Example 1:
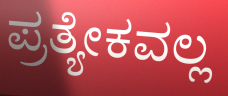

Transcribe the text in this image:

ಪ್ರತ್ಯೇಕವಲ್ಲ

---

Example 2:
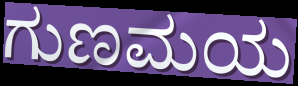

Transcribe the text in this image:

ಗುಣಮಯ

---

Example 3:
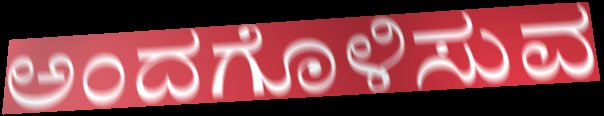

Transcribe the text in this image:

ಅಂದಗೊಳಿಸುವ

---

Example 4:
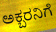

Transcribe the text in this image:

ಅಕ್ಬರನಿಗೆ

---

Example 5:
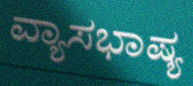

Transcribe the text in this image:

ವ್ಯಾಸಭಾಷ್ಯ